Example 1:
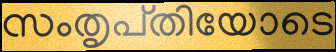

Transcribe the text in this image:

സംതൃപ്‌തിയോടെ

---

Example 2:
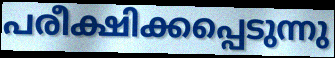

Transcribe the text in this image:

പരീക്ഷിക്കപ്പെടുന്നു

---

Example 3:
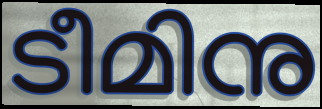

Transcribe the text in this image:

ടീമിനു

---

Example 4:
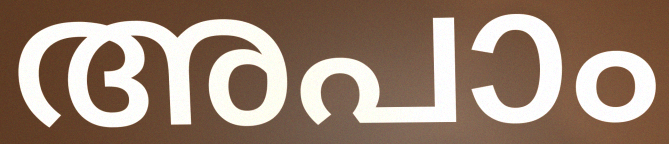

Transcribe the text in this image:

അപാം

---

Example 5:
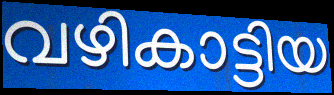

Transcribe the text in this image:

വഴികാട്ടിയ